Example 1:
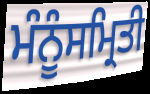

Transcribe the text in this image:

ਮੰਨੂੰਸਮ੍ਰਿਤੀ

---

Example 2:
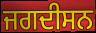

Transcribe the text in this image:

ਜਗਦੀਸਨ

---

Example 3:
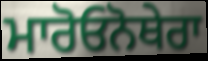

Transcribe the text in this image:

ਮਾਰੋਓਨੋਥੇਰਾ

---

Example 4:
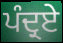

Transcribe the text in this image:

ਪੰਦ੍ਰਏ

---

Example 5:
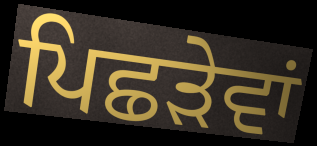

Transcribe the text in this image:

ਪਿਛੜੇਵਾਂ